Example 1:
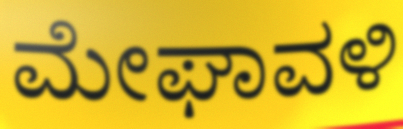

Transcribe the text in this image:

ಮೇಘಾವಳಿ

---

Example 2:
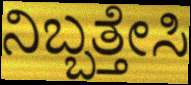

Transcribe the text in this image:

ನಿಬ್ಬತ್ತೇಸಿ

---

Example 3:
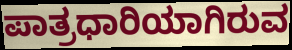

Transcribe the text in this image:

ಪಾತ್ರಧಾರಿಯಾಗಿರುವ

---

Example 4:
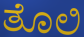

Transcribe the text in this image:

ತೊಲಿ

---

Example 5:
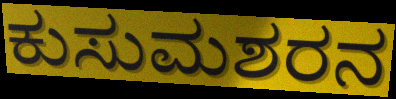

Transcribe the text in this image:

ಕುಸುಮಶರನ